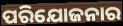
ପରିଯୋଜନାର